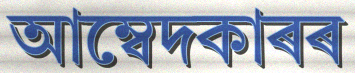
আম্বেদকাৰৰ